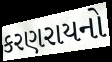
કરણરાયનો